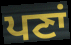
ਪਣਾਂ